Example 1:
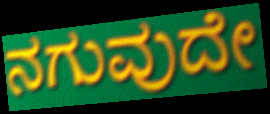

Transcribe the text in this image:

ನಗುವುದೇ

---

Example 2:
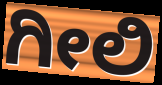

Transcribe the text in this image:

ಗೀಲಿ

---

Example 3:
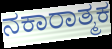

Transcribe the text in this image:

ನಕಾರಾತ್ಮಕ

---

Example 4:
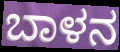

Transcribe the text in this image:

ಬಾಳನ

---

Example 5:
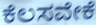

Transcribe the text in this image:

ಕೆಲಸವೇಕೆ